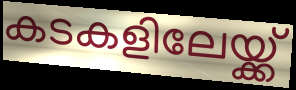
കടകളിലേയ്ക്ക്